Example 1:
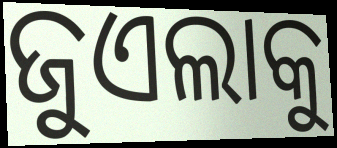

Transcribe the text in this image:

ଜୁଏଲାକୁ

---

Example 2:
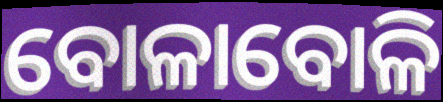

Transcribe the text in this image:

ବୋଳାବୋଳି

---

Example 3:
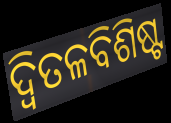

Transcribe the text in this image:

ଦ୍ୱିତଳବିଶିଷ୍ଟ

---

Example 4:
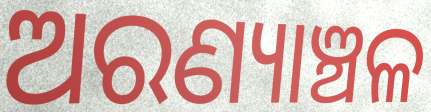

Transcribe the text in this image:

ଅରଣ୍ୟାଞ୍ଚଳ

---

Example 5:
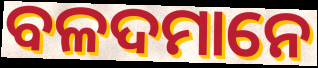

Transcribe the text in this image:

ବଳଦମାନେ